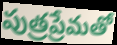
పుత్రప్రేమతో